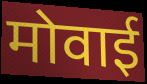
मोवाई